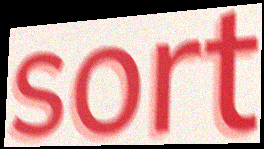
sort